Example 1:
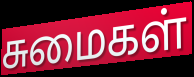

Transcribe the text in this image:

சுமைகள்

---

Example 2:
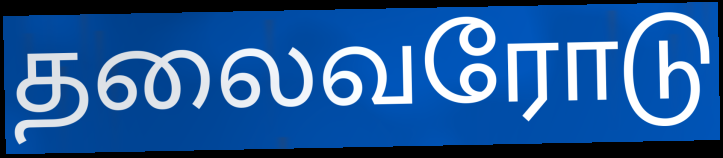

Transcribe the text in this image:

தலைவரோடு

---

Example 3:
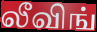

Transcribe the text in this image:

லீவிங்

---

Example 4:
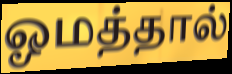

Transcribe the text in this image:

ஓமத்தால்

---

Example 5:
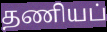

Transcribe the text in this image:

தணியப்